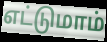
எட்டுமாம்